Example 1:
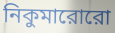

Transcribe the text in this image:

নিকুমারোরো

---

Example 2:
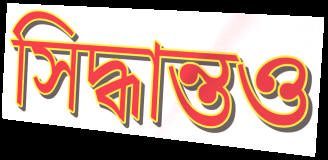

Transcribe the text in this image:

সিদ্ধান্তও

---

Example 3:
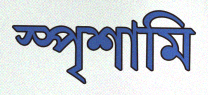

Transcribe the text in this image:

স্পৃশামি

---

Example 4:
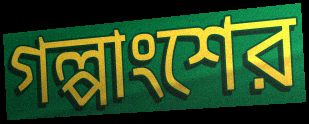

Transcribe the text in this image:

গল্পাংশের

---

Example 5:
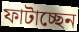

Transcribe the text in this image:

ফাটাচ্ছেন